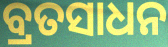
ବ୍ରତସାଧନ